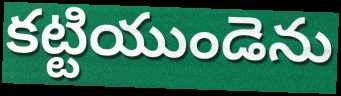
కట్టియుండెను